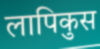
लापिकुस